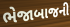
ભેજાબાજની